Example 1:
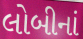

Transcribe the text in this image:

લોબીનાં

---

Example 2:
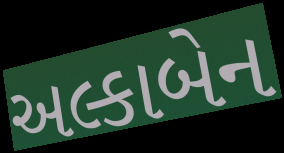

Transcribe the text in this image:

અલ્કાબેન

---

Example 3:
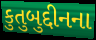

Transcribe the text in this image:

કુતુબુદ્દીનના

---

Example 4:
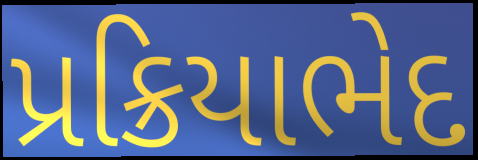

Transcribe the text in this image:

પ્રક્રિયાભેદ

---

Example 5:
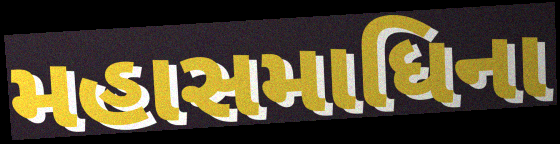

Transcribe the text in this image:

મહાસમાધિના